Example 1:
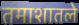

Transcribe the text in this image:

तमाशातले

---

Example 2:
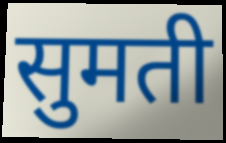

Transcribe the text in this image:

सुमती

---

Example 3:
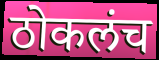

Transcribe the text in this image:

ठोकलंच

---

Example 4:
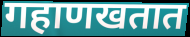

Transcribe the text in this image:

गहाणखतात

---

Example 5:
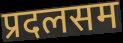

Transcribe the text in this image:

प्रदलसम